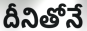
దీనితోనే